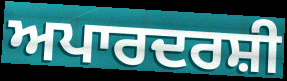
ਅਪਾਰਦਰਸ਼ੀ